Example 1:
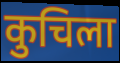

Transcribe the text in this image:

कुचिला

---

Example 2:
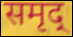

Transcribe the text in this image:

समृद्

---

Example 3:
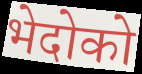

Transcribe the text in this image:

भेदोको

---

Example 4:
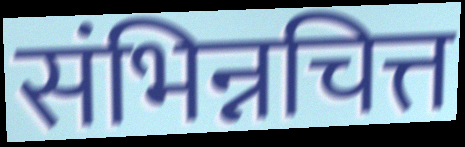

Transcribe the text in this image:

संभिन्नचित्त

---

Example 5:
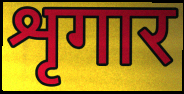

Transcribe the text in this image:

शृगार